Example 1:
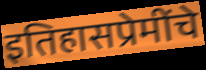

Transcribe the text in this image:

इतिहासप्रेमींचे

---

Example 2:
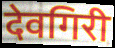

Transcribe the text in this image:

देवगिरी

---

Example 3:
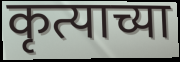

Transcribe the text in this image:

कृत्याच्या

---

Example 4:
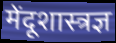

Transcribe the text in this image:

मेंदूशास्त्रज्ञ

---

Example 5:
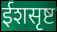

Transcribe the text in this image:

ईशसृष्ट